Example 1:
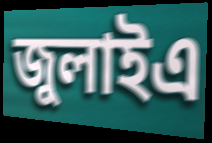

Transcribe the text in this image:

জুলাইএ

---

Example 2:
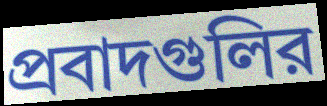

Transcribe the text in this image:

প্রবাদগুলির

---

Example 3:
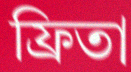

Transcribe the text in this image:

ফ্রিতা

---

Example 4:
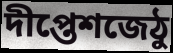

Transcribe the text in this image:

দীপ্তেশজেঠু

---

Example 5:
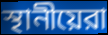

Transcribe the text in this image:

স্থানীয়েরা